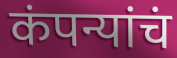
कंपन्यांचं